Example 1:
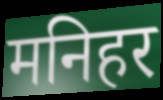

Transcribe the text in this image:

मनिहर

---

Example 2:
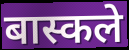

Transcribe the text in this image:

बास्कले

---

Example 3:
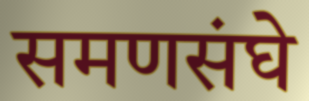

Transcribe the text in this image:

समणसंघे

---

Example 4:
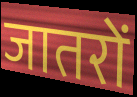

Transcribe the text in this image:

जातरों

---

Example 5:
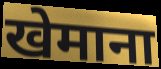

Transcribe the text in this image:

खेमाना